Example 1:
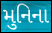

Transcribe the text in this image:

મુનિના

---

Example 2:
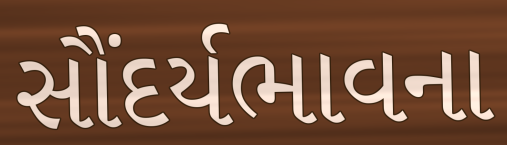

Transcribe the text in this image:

સૌંદર્યભાવના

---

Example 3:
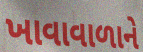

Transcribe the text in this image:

ખાવાવાળાને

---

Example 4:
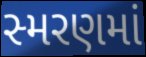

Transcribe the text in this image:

સ્મરણમાં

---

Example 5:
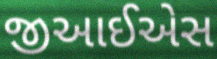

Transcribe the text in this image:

જીઆઈએસ